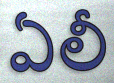
ఏలీ